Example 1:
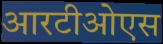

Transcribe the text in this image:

आरटीओएस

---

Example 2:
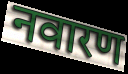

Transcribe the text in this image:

नवारण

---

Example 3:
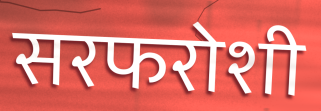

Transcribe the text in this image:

सरफरोशी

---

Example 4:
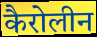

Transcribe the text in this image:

कैरोलीन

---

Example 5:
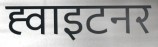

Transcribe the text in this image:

ह्वाइटनर